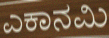
ಎಕಾನಮಿ